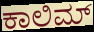
ಕಾಲಿಮ್